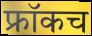
फ्रॉकच